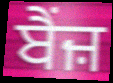
ਬੈਂਜ਼